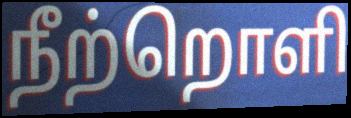
நீற்றொளி